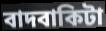
বাদবাকিটা